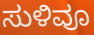
ಸುಳಿವೂ